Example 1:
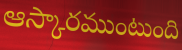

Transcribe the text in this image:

ఆస్కారముంటుంది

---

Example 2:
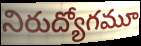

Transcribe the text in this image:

నిరుద్యోగమూ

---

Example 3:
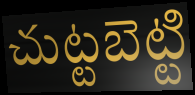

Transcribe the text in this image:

చుట్టబెట్టి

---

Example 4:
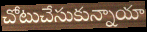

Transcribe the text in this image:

చోటుచేసుకున్నాయా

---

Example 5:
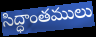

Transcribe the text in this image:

సిద్ధాంతములు